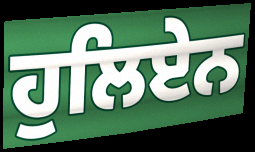
ਹੁਲਿਏਨ